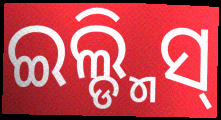
ଇଲ୍ଡ୍ମିସ୍